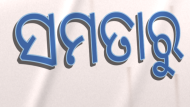
ସମତାରୁ